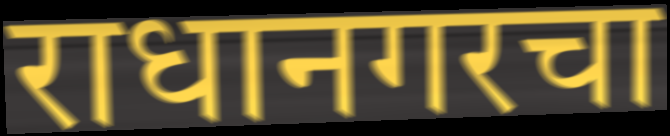
राधानगरचा